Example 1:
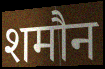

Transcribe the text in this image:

शमौन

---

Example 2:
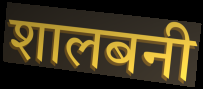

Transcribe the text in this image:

शालबनी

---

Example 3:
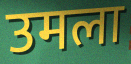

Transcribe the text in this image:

उमला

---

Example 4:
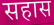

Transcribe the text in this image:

सहास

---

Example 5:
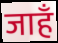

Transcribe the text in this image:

जाहँ